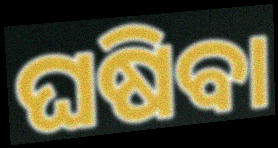
ଘଷିବା